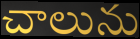
చాలును